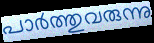
പാർത്തുവരുന്നു